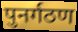
पुनर्गठण